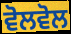
ਵੋਲਵੋਲ